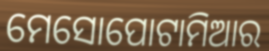
ମେସୋପୋଟାମିଆର